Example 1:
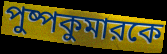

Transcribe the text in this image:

পুষ্পকুমারকে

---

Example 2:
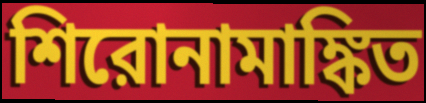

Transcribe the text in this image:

শিরোনামাঙ্কিত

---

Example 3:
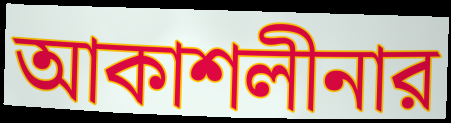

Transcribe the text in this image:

আকাশলীনার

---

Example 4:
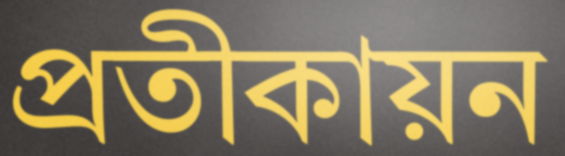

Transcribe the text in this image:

প্রতীকায়ন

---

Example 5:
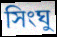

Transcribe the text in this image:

সিংঘু